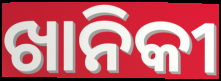
ଖାନିକୀ